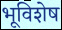
भूविशेष